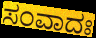
ಸಂವಾದಃ